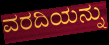
ವರದಿಯನ್ನು